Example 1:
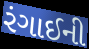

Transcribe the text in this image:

રંગાઈની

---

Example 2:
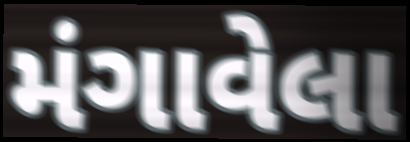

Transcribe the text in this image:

મંગાવેલા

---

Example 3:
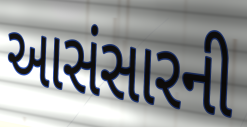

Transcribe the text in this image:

આસંસારની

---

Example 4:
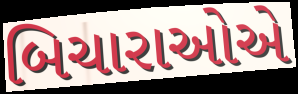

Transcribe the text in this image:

બિચારાઓએ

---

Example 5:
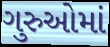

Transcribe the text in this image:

ગુરુઓમાં